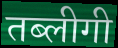
तब्लीगी